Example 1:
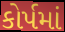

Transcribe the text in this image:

કોર્પમાં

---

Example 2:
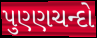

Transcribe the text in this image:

પુણ્ણચન્દો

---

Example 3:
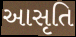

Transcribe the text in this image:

આસૃતિ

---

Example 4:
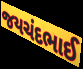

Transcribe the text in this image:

જયચંદભાઈ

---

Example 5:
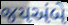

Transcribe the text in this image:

જયઅંબે